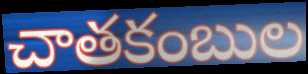
చాతకంబుల